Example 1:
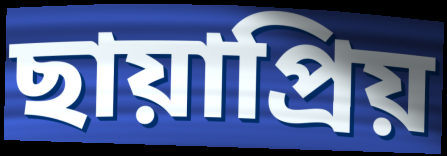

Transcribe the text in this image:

ছায়াপ্রিয়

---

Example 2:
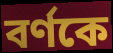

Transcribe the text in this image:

বর্ণকে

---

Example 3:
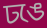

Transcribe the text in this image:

ঢঙে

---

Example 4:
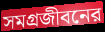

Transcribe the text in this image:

সমগ্রজীবনের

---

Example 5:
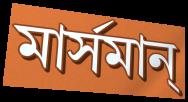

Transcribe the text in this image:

মার্সমান্